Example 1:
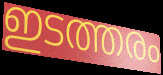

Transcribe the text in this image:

ഇടത്തരം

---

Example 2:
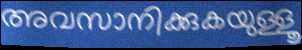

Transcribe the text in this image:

അവസാനിക്കുകയുള്ളൂ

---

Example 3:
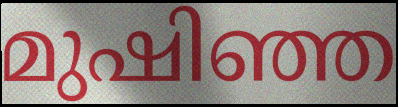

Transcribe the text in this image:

മുഷിഞ്ഞ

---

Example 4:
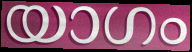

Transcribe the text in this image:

യാഗം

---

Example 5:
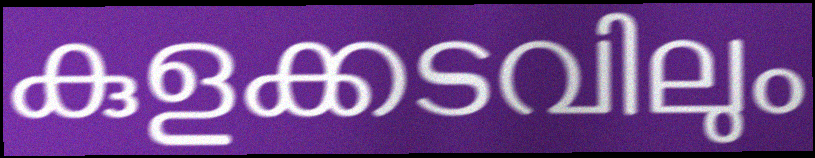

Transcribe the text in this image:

കുളക്കടവിലും